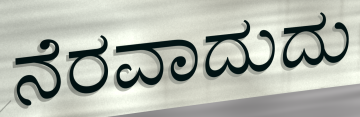
ನೆರವಾದುದು